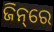
ଜିନ୍‌ରେ